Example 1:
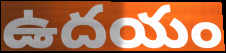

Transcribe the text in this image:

ఉదయం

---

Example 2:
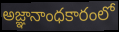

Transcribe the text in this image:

అజ్ఞానాంధకారంలో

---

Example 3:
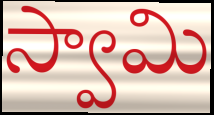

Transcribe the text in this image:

స్వామి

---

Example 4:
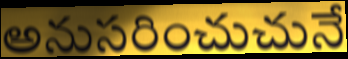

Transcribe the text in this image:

అనుసరించుచునే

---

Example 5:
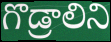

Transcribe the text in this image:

గొడ్రాలిని